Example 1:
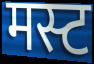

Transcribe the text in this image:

मस्‍ट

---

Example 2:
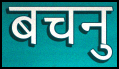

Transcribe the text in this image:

बचनु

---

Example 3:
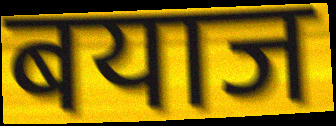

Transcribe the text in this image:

बयाज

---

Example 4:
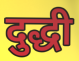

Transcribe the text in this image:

दुद्धी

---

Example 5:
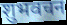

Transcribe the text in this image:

शुभवचन